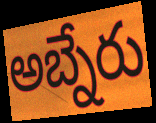
అబ్నేరు